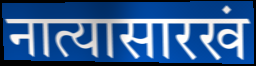
नात्यासारखं